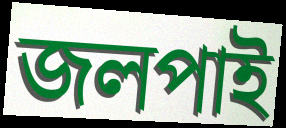
জলপাই